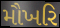
મૌખરિ